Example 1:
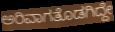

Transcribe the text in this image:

ಅರಿವಾಗತೊಡಗಿದ್ದೇ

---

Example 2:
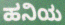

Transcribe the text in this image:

ಹನಿಯ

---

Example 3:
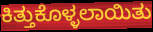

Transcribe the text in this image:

ಕಿತ್ತುಕೊಳ್ಳಲಾಯಿತು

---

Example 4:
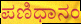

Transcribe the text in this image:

ಪಣಿಧಾನಂ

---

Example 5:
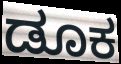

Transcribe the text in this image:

ಡೂಕ